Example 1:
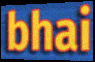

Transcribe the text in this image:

bhai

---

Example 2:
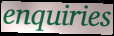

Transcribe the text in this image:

enquiries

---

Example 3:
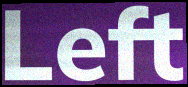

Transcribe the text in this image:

Left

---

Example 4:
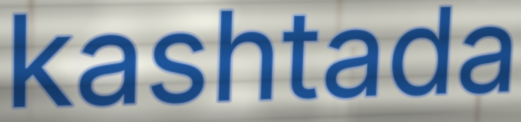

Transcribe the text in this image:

kashtada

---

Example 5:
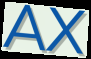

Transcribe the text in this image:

AX